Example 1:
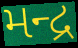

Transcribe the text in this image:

મન્દ્ર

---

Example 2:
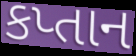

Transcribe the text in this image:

કપ્તાન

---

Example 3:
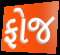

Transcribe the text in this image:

ફોજ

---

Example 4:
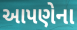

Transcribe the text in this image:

આપણેના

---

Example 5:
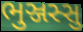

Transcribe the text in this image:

ભુઞ્જસ્સુ